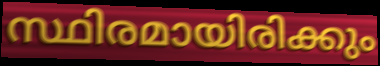
സ്ഥിരമായിരിക്കും